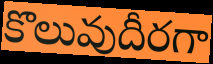
కొలువుదీరగా